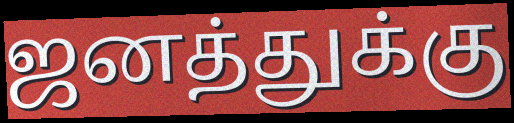
ஜனத்துக்கு